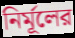
নির্মূলের